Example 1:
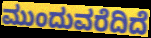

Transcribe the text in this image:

ಮುಂದುವರೆದಿದೆ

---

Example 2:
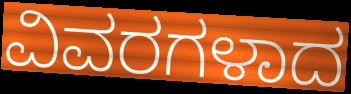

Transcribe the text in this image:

ವಿವರಗಳಾದ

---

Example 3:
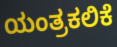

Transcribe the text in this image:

ಯಂತ್ರಕಲಿಕೆ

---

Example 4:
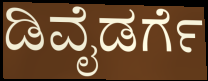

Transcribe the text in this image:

ಡಿವೈಡರ್ಗೆ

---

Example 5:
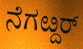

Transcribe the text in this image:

ನೆಗೞ್ದರ್